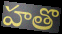
హతొ